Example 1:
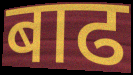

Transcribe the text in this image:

बाढ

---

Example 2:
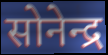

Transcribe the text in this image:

सोनेन्द्र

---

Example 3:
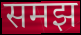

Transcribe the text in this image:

समझ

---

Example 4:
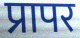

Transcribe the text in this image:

प्रापर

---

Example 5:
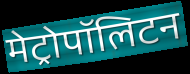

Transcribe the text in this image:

मेट्रोपॉलिटन